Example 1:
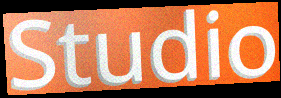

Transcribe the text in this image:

Studio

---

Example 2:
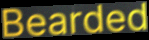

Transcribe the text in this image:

Bearded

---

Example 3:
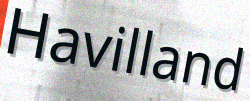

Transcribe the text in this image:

Havilland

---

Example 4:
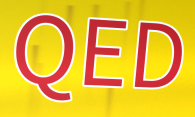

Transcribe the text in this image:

QED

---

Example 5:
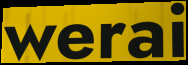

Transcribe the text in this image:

werai